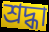
শ্রদ্ধা